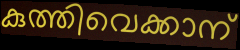
കുത്തിവെക്കാന്